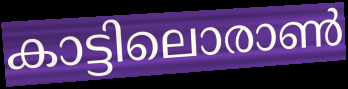
കാട്ടിലൊരാൺ